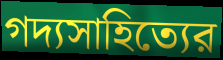
গদ্যসাহিত্যের